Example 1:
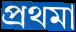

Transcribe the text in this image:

প্ৰথমা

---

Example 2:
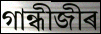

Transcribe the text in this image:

গান্ধীজীৰ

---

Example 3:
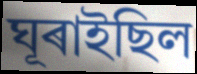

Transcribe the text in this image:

ঘূৰাইছিল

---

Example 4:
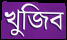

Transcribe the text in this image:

খুজিব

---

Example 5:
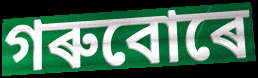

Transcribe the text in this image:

গৰুবোৰে